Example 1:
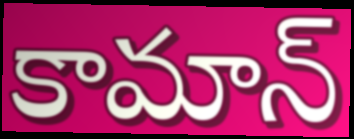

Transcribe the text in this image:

కామాన్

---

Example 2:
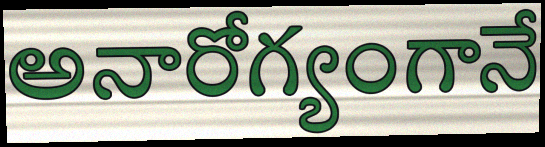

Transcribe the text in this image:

అనారోగ్యంగానే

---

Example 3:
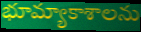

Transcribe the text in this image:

భూమ్యాకాశాలను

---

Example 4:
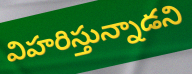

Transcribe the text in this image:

విహరిస్తున్నాడని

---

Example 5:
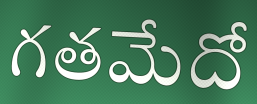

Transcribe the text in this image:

గతమేదో